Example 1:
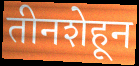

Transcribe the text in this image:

तीनशेहून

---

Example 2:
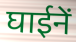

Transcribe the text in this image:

घाईनें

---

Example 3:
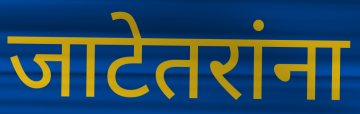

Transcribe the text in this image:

जाटेतरांना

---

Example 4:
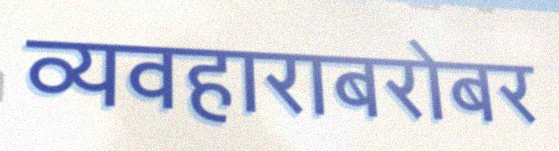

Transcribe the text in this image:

व्यवहाराबरोबर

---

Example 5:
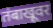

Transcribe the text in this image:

तंबाखूवर